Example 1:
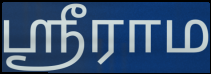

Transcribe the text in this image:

ஸ்ரீராம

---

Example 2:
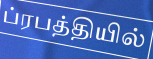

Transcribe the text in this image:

ப்ரபத்தியில்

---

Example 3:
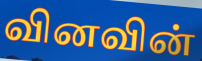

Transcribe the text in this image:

வினவின்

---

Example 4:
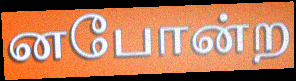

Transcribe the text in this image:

னபோன்ற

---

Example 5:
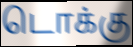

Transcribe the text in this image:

டொக்கு